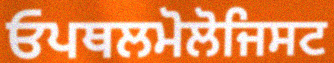
ਓਪਥਲਮੋਲੋਜਿਸਟ